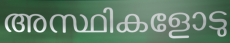
അസ്ഥികളോടു